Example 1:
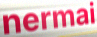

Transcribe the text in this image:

nermai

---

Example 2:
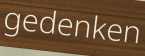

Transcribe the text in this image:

gedenken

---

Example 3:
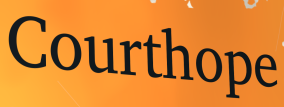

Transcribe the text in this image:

Courthope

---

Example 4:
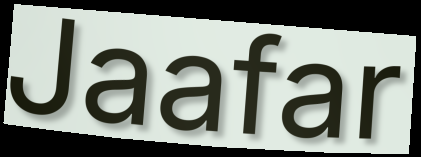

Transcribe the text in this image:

Jaafar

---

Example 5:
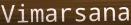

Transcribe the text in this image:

Vimarsana